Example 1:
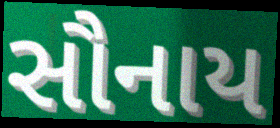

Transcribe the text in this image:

સૌનાય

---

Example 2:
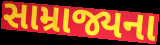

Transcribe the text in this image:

સામ્રાજ્યના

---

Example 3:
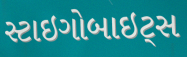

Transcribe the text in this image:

સ્ટાઇગોબાઇટ્સ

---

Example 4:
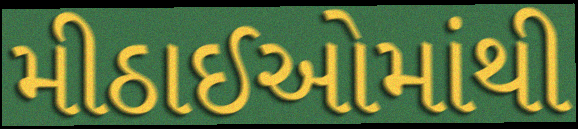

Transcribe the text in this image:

મીઠાઈઓમાંથી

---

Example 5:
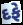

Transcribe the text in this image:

દફે